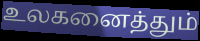
உலகனைத்தும்